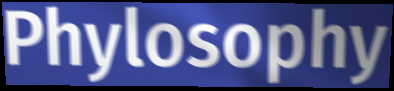
Phylosophy